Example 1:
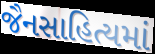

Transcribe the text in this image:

જૈનસાહિત્યમાં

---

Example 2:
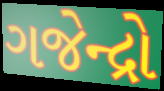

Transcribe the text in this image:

ગજેન્દ્રો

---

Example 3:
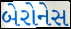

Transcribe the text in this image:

બેરોનેસ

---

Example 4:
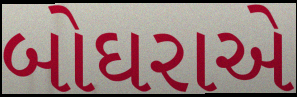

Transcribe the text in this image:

બોઘરાએ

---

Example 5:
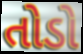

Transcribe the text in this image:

તોડો